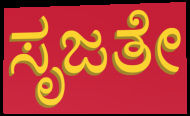
ಸೃಜತೇ